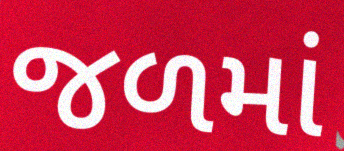
જળમાં